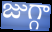
జుగ్గా